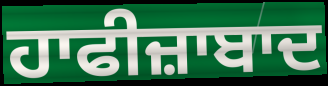
ਹਾਫੀਜ਼ਾਬਾਦ